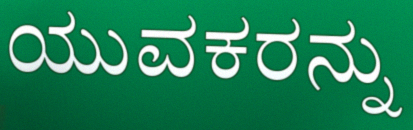
ಯುವಕರನ್ನು